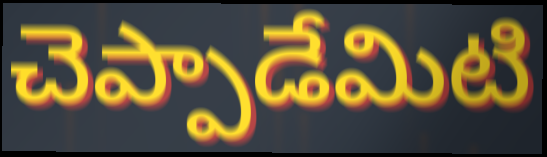
చెప్పాడేమిటి